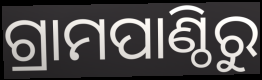
ଗ୍ରାମପାଣ୍ଠିରୁ